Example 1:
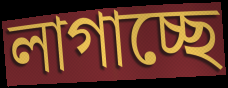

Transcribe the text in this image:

লাগাচ্ছে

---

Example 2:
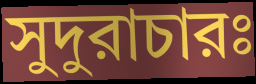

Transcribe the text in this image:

সুদুরাচারঃ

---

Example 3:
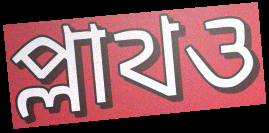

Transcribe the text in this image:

প্লাথও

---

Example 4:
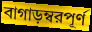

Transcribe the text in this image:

বাগাড়ম্বরপূর্ণ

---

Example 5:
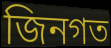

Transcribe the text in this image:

জিনগত